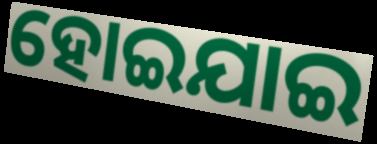
ହୋଇଯାଇ